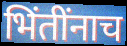
भिंतींनाच